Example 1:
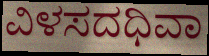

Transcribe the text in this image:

ವಿಳಸದಧಿವಾ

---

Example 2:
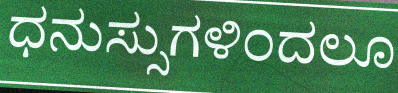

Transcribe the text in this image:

ಧನುಸ್ಸುಗಳಿಂದಲೂ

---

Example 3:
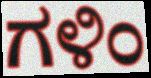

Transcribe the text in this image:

ಗಳಿಂ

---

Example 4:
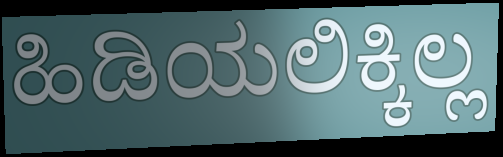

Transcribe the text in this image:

ಹಿಡಿಯಲಿಕ್ಕಿಲ್ಲ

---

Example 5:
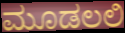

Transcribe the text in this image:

ಮೂಡಲಲಿ